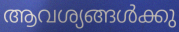
ആവശ്യങ്ങൾക്കു